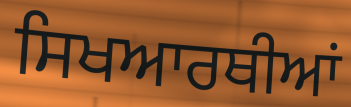
ਸਿਖਆਰਥੀਆਂ